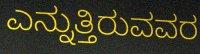
ಎನ್ನುತ್ತಿರುವವರ